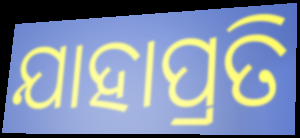
ଯାହାପ୍ରତି